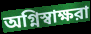
অগ্নিস্বাক্ষরা